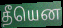
தீயென